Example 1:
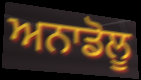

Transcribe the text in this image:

ਅਨਾਡੋਲੂ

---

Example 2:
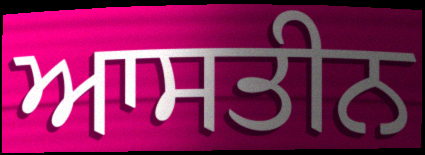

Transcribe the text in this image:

ਆਸਤੀਨ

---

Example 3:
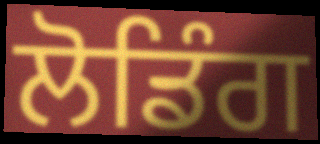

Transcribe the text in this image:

ਲੋਡਿੰਗ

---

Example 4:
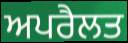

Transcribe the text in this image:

ਅਪਰੈਲਤ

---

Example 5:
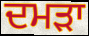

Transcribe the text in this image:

ਦਮੜਾ